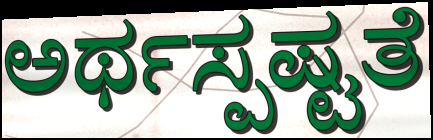
ಅರ್ಥಸ್ಪಷ್ಟತೆ